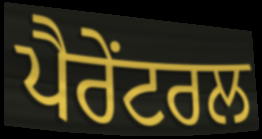
ਪੈਰੇਂਟਰਲ